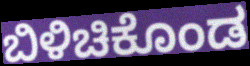
ಬಿಳಿಚಿಕೊಂಡ